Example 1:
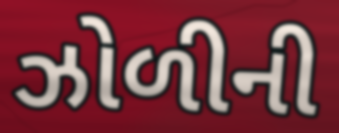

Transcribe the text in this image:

ઝોળીની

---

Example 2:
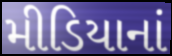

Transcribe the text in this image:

મીડિયાનાં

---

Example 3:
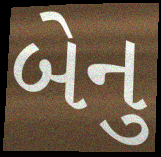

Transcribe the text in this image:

બેનુ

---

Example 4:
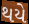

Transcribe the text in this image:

થયે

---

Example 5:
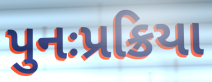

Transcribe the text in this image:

પુનઃપ્રક્રિયા